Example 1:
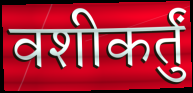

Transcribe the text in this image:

वशीकर्तुं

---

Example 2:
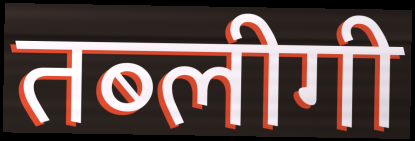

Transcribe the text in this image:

तब्‍लीगी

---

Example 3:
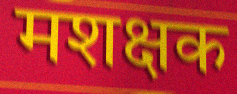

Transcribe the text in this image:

मशक्षक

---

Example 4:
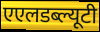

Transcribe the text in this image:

एएलडब्ल्यूटी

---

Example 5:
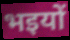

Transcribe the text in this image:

भइयों